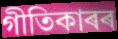
গীতিকাৰৰ